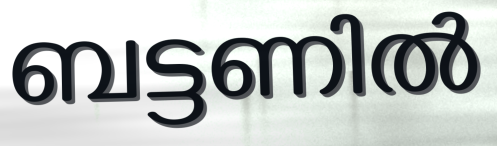
ബട്ടണിൽ